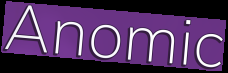
Anomic